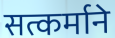
सत्कर्माने